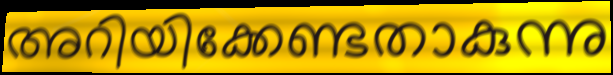
അറിയിക്കേണ്ടതാകുന്നു